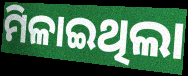
ମିଳାଇଥିଲା